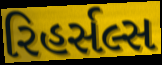
રિહર્સલ્સ